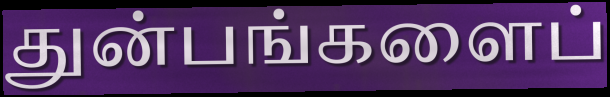
துன்பங்களைப்